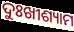
ଦୁଃଖୀଶ୍ୟାମ